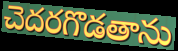
చెదరగొడతాను